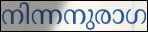
നിന്നനുരാഗ